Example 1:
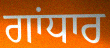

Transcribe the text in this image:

ਗਾਂਧਾਰ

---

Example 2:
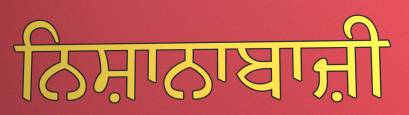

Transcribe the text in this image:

ਨਿਸ਼ਾਨਾਬਾਜ਼ੀ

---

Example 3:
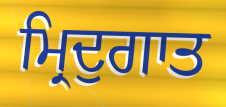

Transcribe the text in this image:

ਮ੍ਰਿਦੁਗਾਤ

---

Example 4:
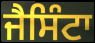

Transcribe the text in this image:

ਜੈਸਿੰਟਾ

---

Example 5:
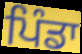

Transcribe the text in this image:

ਪਿੰਡਾ